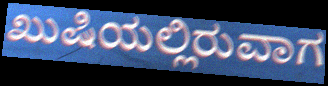
ಖುಷಿಯಲ್ಲಿರುವಾಗ